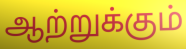
ஆற்றுக்கும்